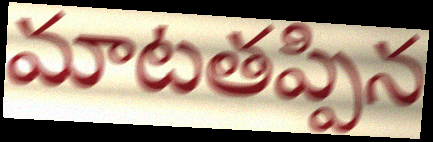
మాటతప్పిన